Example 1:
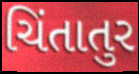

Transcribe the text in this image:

ચિંતાતુર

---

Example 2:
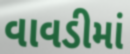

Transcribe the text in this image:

વાવડીમાં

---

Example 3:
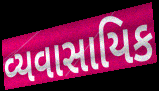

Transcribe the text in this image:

વ્યવાસાયિક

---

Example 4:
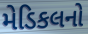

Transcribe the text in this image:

મેડિકલનો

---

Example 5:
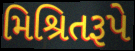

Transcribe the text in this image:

મિશ્રિતરૂપે